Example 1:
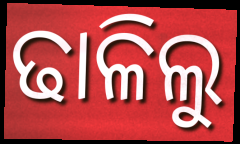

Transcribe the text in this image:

ଢାଳିଲୁ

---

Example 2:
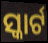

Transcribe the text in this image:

ସ୍କାର୍ଟ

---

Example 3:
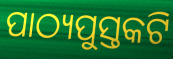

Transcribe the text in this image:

ପାଠ୍ୟପୁସ୍ତକଟି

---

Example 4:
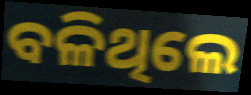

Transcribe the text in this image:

ବଳିଥିଲେ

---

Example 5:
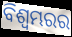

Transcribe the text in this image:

ବିଶ୍ଵମ୍ଭରର